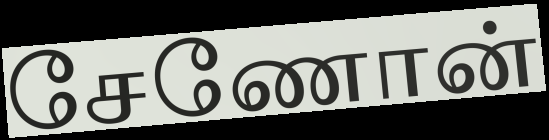
சேணோன்